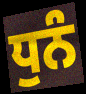
ਧੁਨੰ